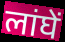
लांघें